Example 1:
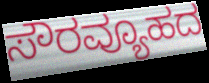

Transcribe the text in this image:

ಸೌರವ್ಯೂಹದ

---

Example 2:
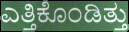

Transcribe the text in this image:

ಎತ್ತಿಕೊಂಡಿತ್ತು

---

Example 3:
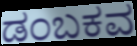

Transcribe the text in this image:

ಡಂಬಕವ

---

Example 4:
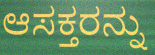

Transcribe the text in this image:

ಆಸಕ್ತರನ್ನು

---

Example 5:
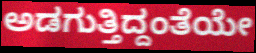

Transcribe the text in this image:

ಅಡಗುತ್ತಿದ್ದಂತೆಯೇ